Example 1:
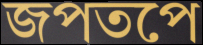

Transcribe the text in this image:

জপতপে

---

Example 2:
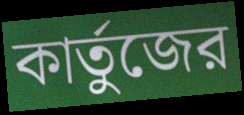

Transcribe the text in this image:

কার্তুজের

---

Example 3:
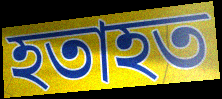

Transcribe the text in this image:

হতাহত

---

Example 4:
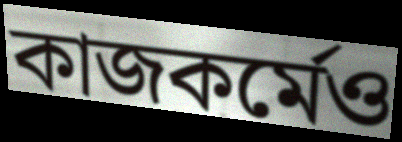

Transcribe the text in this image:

কাজকর্মেও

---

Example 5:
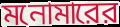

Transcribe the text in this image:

মনোমারের